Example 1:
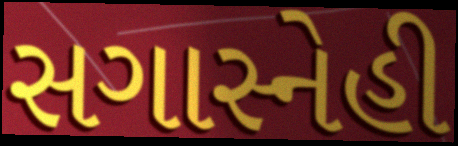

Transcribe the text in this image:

સગાસ્નેહી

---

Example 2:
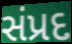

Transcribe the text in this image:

સંપ્રદ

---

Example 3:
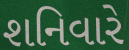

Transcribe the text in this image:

શનિવારે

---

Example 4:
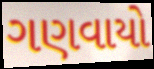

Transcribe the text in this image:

ગણવાયો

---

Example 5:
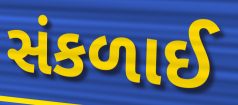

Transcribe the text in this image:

સંકળાઈ